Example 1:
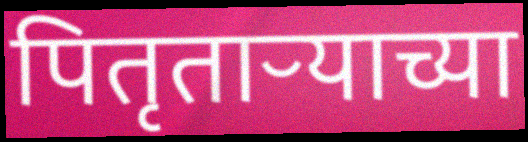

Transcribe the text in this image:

पितृताऱ्याच्या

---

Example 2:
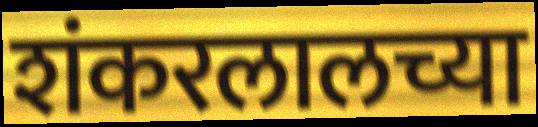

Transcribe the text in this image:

शंकरलालच्या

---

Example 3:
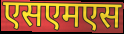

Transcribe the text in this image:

एसएमएस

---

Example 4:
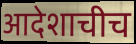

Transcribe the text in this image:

आदेशाचीच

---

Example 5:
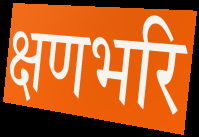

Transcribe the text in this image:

क्षणभरि